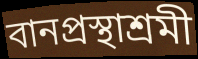
বানপ্রস্থাশ্রমী